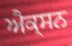
ਐਕ੍ਸਨ